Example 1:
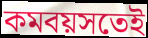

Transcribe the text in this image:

কমবয়সতেই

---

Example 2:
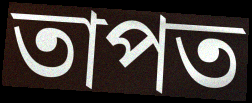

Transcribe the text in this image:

তাপত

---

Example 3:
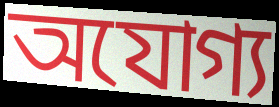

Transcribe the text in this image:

অযোগ্য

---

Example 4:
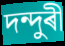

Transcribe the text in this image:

দন্দুৰী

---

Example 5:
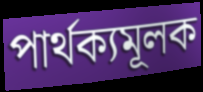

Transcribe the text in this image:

পাৰ্থক্যমূলক